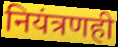
नियंत्रणही